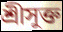
শ্রীসুক্ত